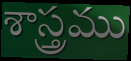
శాస్త్రము